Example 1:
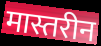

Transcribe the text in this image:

मास्तरीन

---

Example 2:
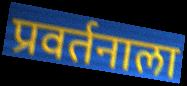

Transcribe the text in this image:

प्रवर्तनाला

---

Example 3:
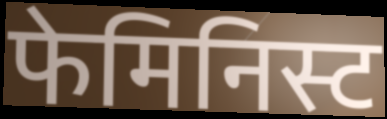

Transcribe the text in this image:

फेमिनिस्ट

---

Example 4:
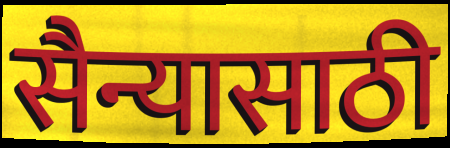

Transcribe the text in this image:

सैन्यासाठी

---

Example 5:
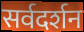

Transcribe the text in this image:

सर्वदर्शन